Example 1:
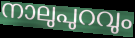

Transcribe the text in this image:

നാലുപുറവും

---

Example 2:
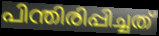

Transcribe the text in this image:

പിന്തിരിപ്പിച്ചത്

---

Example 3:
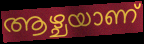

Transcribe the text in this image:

ആഴ്ചയാണ്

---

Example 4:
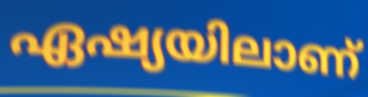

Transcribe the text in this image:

ഏഷ്യയിലാണ്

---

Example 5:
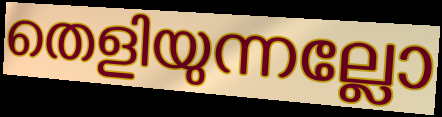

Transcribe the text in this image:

തെളിയുന്നല്ലോ